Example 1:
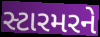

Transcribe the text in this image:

સ્ટારમરને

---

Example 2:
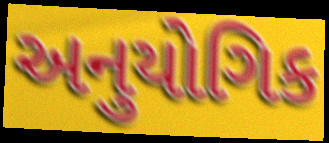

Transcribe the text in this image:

અનુયોગિક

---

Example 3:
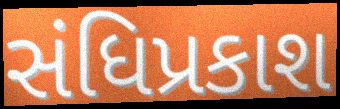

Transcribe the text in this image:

સંધિપ્રકાશ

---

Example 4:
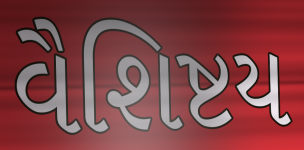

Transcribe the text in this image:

વૈશિષ્ટય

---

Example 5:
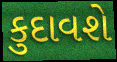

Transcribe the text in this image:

કુદાવશે